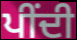
ਪੀਂਦੀ